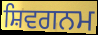
ਸ਼ਿਵਗਨਮ